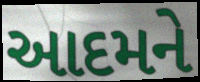
આદમને